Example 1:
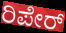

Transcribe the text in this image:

ರಿಪೇರ್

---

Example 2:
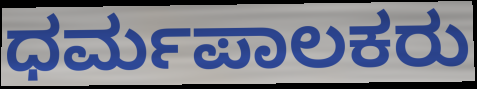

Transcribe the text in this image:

ಧರ್ಮಪಾಲಕರು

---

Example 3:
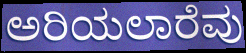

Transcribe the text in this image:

ಅರಿಯಲಾರೆವು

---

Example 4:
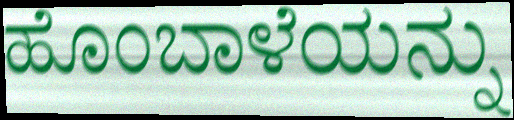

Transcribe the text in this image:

ಹೊಂಬಾಳೆಯನ್ನು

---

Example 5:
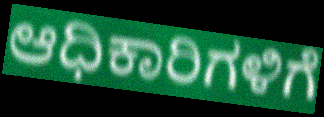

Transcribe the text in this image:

ಆಧಿಕಾರಿಗಳಿಗೆ